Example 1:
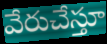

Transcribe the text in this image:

వేరుచేస్తూ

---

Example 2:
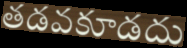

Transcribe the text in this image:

తడవకూడదు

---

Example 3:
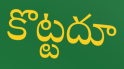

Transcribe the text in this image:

కొట్టదూ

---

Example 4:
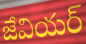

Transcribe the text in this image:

జేవియర్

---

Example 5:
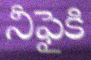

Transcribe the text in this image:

నీఫైకి